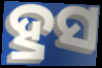
ହ୍ରସ